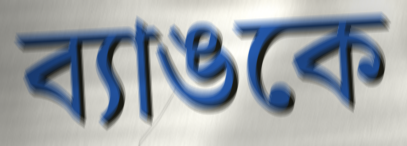
ব্যাঙকে